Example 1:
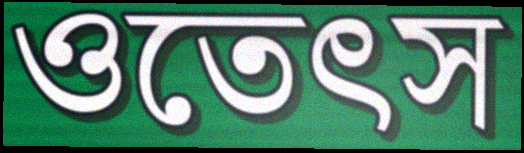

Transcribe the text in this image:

ওতেৎস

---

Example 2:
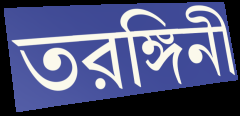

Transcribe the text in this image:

তরঙ্গিনী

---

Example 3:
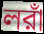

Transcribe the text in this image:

লরাঁ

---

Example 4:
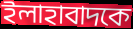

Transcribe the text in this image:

ইলাহাবাদকে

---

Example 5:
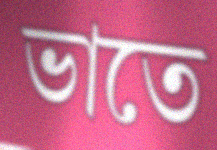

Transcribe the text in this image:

ভাতে